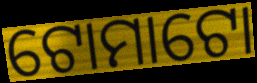
ଟୋମାଟୋ